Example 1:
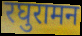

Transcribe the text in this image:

रघुरामन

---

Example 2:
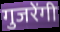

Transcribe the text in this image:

गुजरेंगी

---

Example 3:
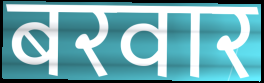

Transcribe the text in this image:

बरवार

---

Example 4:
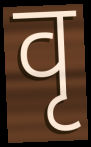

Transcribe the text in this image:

वृ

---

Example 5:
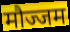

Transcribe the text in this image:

मौज्जम